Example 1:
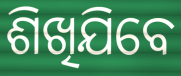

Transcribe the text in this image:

ଶିଖିଯିବେ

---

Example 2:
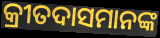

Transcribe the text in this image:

କ୍ରୀତଦାସମାନଙ୍କ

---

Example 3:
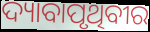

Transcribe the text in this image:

ଦ୍ୟାବାପୃଥିବୀର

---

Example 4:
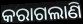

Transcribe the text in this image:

କରାଗଲାଣି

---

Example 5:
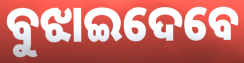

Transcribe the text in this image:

ବୁଝାଇଦେବେ